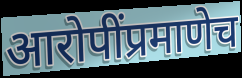
आरोपींप्रमाणेच